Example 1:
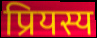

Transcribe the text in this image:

प्रियस्य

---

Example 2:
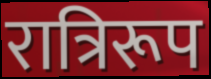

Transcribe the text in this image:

रात्रिरूप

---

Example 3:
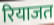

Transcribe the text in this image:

रियाजत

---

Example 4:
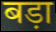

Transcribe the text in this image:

बड़ा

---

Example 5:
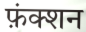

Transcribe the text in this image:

फ़ंक्शन